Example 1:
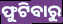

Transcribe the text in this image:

ଫୁଟିବାରୁ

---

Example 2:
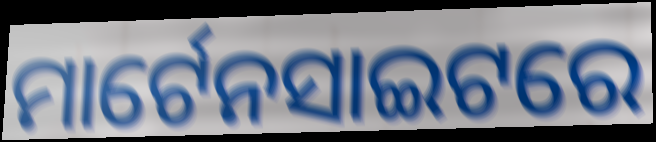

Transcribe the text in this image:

ମାର୍ଟେନସାଇଟରେ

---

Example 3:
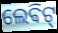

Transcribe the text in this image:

ଲେଵିଟ୍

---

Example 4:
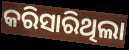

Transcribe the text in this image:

କରିସାରିଥିଲା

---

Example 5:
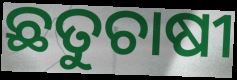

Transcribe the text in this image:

ଛତୁଚାଷୀ